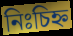
নিঃচিহ্ন